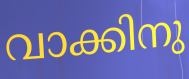
വാക്കിനു